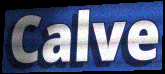
Calve